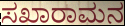
ಸಖಾರಾಮನ